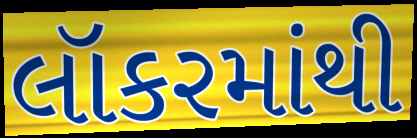
લૉકરમાંથી